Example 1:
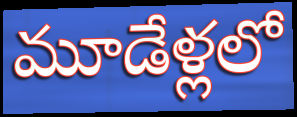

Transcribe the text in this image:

మూడేళ్లలో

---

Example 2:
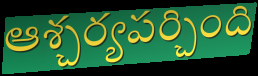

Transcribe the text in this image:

ఆశ్చర్యపర్చింది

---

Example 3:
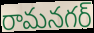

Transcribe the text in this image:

రామనగర్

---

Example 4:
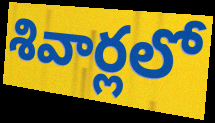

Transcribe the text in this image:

శివార్లలో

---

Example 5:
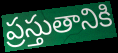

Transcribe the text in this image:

ప్రస్తుతానికి